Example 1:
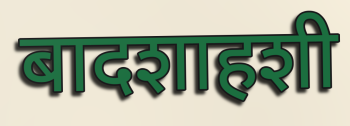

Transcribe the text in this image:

बादशाहशी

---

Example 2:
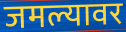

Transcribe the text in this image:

जमल्यावर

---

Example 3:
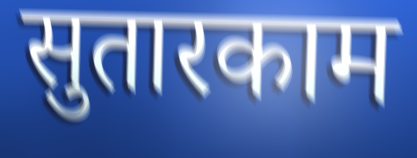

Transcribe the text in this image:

सुतारकाम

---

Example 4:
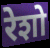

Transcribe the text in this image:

रेशो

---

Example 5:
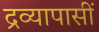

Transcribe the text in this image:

द्रव्यापासीं